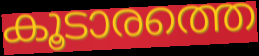
കൂടാരത്തെ